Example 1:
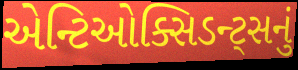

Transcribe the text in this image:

એન્ટિઓક્સિડન્ટ્સનું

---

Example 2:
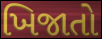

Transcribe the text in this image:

ખિજાતો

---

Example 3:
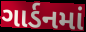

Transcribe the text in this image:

ગાર્ડનમાં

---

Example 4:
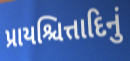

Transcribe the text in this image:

પ્રાયશ્ચિત્તાદિનું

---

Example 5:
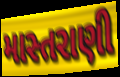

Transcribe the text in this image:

માસ્તરાણી